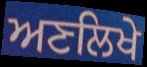
ਅਣਲਿਖੇ